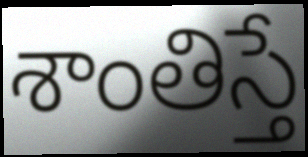
శాంతిస్తే